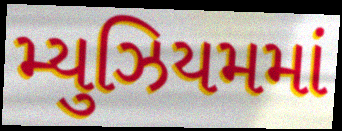
મ્યુઝિયમમાં